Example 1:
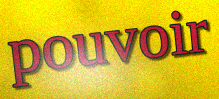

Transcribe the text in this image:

pouvoir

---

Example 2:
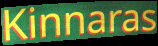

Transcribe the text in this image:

Kinnaras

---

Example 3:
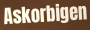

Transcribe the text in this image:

Askorbigen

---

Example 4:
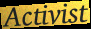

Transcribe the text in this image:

Activist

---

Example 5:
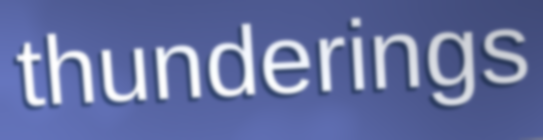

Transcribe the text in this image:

thunderings